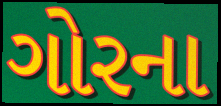
ગોરના